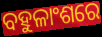
ବହୁଳାଂଶରେ